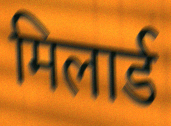
मिलार्ड